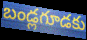
బండ్లగూడకు